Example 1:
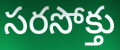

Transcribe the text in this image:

సరసోక్తు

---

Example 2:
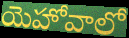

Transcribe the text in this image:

యెహోవాలో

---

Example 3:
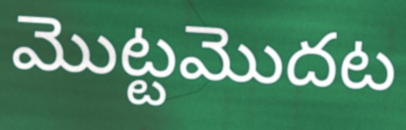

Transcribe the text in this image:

మొట్టమొదట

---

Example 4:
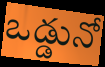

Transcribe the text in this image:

ఒడ్డునో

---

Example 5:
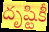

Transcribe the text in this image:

దృష్టికీ